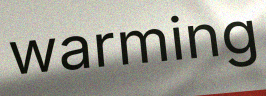
warming